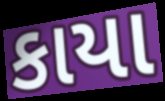
કાયા